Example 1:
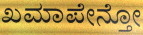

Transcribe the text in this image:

ಖಮಾಪೇನ್ತೋ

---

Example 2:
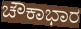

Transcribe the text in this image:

ಚೌಕಾಭಾರ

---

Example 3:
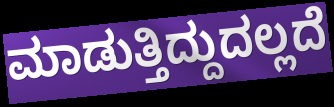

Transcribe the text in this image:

ಮಾಡುತ್ತಿದ್ದುದಲ್ಲದೆ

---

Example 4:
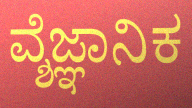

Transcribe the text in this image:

ವ್ಶೆಜ್ಞಾನಿಕ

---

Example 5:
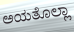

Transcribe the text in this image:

ಅಯತೊಲ್ಲಾ